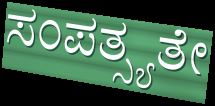
ಸಂಪತ್ಸ್ಯತೇ